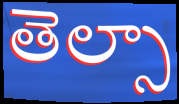
తెల్సా